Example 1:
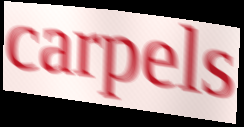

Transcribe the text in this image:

carpels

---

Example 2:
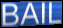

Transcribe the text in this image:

BAIL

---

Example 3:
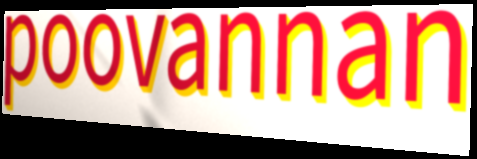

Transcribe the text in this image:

poovannan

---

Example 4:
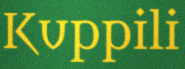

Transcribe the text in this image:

Kuppili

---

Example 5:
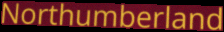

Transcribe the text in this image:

Northumberland